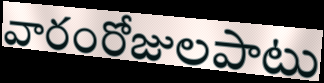
వారంరోజులపాటు